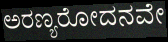
ಅರಣ್ಯರೋದನವೇ